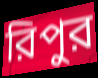
রিপুর